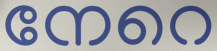
നേറെ